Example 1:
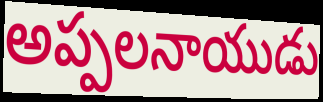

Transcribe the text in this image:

అప్పలనాయుడు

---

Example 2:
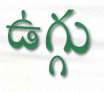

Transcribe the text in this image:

ఉగ్గు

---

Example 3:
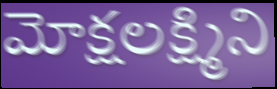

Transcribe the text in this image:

మోక్షలక్ష్మిని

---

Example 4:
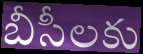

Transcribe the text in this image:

బీసీలకు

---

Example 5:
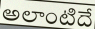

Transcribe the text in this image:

అలాంటిదే